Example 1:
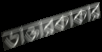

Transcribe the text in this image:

ডাক্তারকাকার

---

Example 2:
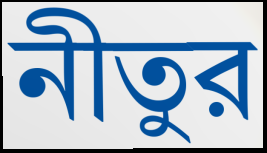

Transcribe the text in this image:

নীতুর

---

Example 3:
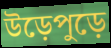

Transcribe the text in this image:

উড়েপুড়ে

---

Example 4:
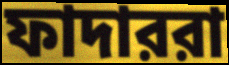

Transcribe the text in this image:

ফাদাররা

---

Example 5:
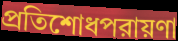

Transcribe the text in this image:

প্রতিশোধপরায়ণা